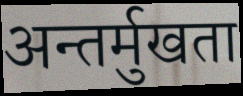
अन्तर्मुखता